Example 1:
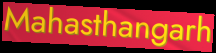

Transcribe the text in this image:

Mahasthangarh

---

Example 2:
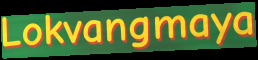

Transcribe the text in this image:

Lokvangmaya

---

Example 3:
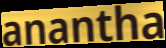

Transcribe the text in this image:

anantha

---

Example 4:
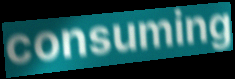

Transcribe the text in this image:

consuming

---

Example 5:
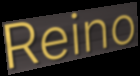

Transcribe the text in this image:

Reino